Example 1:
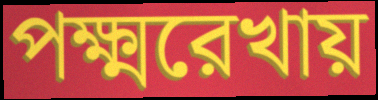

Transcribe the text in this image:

পক্ষ্মরেখায়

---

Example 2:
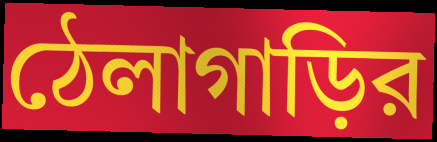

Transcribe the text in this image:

ঠেলাগাড়ির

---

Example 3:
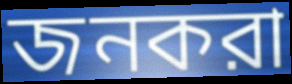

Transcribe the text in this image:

জনকরা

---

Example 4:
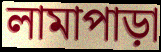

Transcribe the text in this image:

লামাপাড়া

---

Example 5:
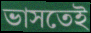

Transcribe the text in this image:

ভাসতেই